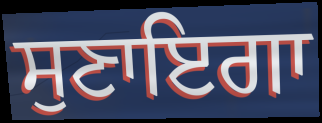
ਸੁਣਾਇਗਾ